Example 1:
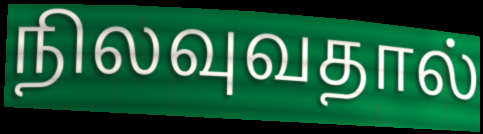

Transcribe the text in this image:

நிலவுவதால்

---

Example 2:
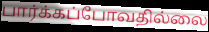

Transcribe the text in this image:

பார்க்கப்போவதில்லை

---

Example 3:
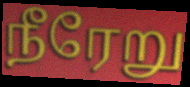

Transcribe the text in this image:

நீரேறு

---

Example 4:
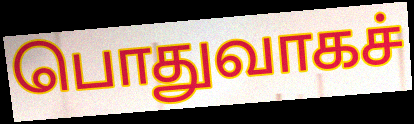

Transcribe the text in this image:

பொதுவாகச்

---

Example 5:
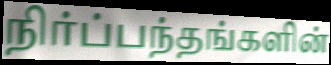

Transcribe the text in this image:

நிர்ப்பந்தங்களின்